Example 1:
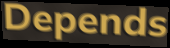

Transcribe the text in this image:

Depends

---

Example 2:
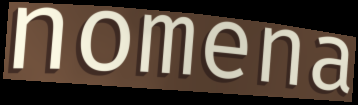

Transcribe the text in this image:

nomena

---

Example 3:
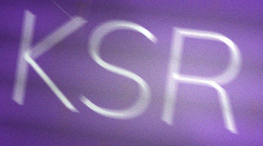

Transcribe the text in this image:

KSR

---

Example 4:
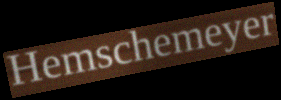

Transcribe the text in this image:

Hemschemeyer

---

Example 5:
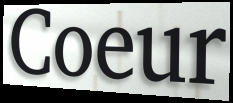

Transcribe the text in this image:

Coeur